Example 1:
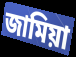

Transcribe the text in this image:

জামিয়া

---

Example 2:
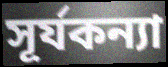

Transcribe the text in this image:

সূর্যকন্যা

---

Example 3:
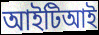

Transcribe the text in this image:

আইটিআই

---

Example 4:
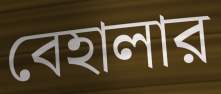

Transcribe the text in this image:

বেহালার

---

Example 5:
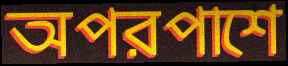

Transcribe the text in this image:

অপরপাশে